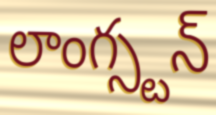
లాంగ్స్టన్